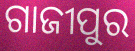
ଗାଜୀପୁର